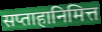
सप्ताहानिमित्त